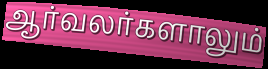
ஆர்வலர்களாலும்